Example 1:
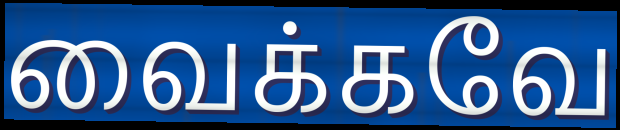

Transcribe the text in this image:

வைக்கவே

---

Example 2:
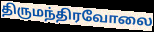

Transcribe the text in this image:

திருமந்திரவோலை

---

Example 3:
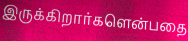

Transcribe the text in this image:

இருக்கிறார்களென்பதை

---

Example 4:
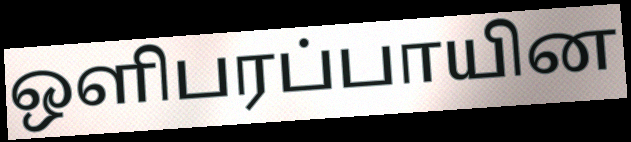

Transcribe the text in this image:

ஒளிபரப்பாயின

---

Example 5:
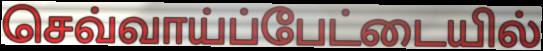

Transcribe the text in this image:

செவ்வாய்ப்பேட்டையில்